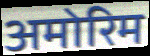
अमोरिम